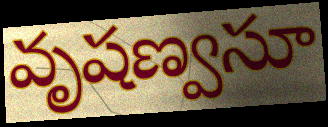
వృషణ్వసూ